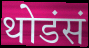
थोडंसं